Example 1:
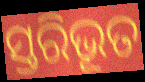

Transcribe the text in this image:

ସ୍ତରିଭୂତ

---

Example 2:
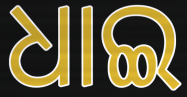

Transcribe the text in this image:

ଧାଇ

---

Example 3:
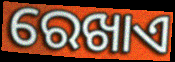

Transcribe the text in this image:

ରେଖାଏ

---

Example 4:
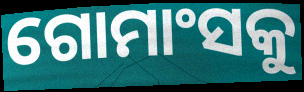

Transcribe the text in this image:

ଗୋମାଂସକୁ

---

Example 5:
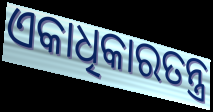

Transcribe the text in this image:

ଏକାଧିକାରତନ୍ତ୍ର